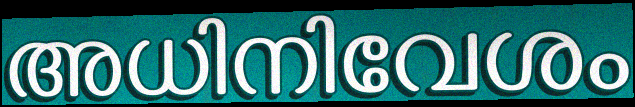
അധിനിവേശം